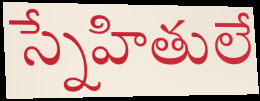
స్నేహితులే